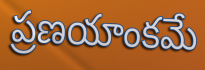
ప్రణయాంకమే